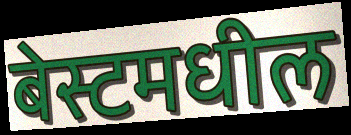
बेस्टमधील